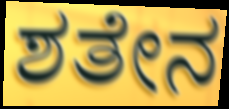
ಶತೇನ